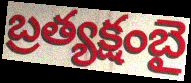
బ్రత్యక్షంబై